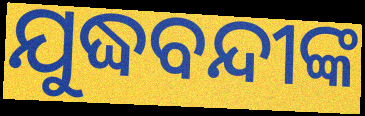
ଯୁଦ୍ଧବନ୍ଦୀଙ୍କ